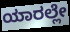
ಯಾರಲ್ಲೇ